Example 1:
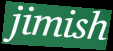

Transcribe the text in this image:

jimish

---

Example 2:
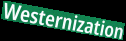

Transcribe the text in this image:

Westernization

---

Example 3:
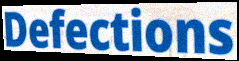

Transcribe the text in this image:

Defections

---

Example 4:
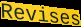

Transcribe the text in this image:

Revises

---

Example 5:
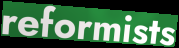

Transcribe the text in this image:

reformists